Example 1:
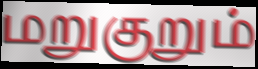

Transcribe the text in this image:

மறுகுறும்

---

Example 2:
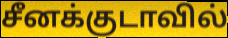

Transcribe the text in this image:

சீனக்குடாவில்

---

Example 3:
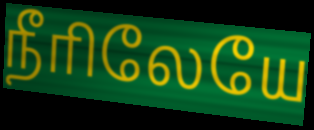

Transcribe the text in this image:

நீரிலேயே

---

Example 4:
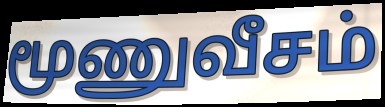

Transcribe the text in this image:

மூணுவீசம்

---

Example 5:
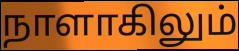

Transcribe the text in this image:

நாளாகிலும்